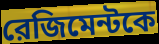
রেজিমেন্টকে